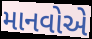
માનવોએ